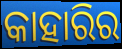
କାହାରିର